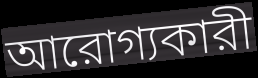
আরোগ্যকারী